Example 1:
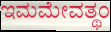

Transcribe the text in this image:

ಇಮಮೇವತ್ಥಂ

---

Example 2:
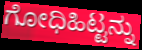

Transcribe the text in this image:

ಗೋಧಿಹಿಟ್ಟನ್ನು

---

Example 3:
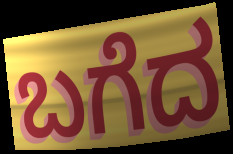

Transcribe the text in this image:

ಬಗೆದ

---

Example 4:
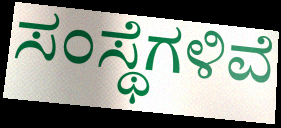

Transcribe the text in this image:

ಸಂಸ್ಥೆಗಳಿವೆ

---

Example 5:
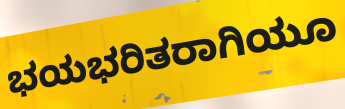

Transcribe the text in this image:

ಭಯಭರಿತರಾಗಿಯೂ